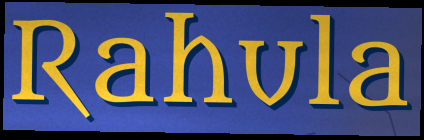
Rahula